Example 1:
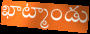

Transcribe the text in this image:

ఖాట్మాండు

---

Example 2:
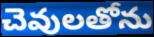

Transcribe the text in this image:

చెవులతోను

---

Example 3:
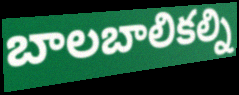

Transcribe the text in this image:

బాలబాలికల్ని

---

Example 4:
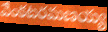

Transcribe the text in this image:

వేంకటరమణయ్య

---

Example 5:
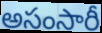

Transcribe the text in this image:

అసంసారీ